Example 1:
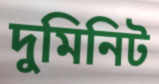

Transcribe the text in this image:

দুমিনিট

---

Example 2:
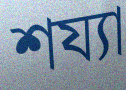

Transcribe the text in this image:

শয্যা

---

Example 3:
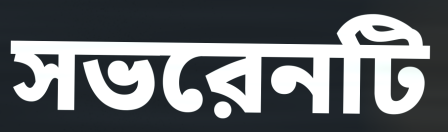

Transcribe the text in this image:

সভরেনটি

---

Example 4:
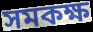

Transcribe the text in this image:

সমকক্ষ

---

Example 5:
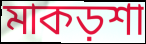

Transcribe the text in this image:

মাকড়শা